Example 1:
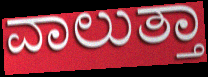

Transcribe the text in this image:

ವಾಲುತ್ತಾ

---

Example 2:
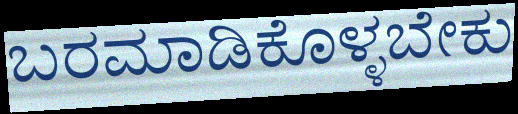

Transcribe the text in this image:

ಬರಮಾಡಿಕೊಳ್ಳಬೇಕು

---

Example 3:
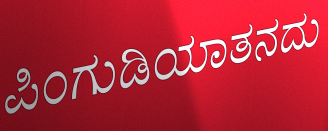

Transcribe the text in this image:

ಪಿಂಗುಡಿಯಾತನದು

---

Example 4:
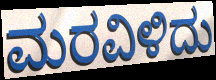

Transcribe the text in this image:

ಮರವಿಳಿದು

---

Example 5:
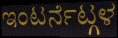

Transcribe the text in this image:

ಇಂಟರ್ನೆಟ್ಗಳ